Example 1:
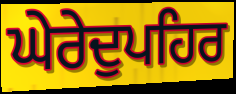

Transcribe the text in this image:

ਘੇਰੇਦੁਪਹਿਰ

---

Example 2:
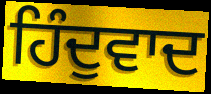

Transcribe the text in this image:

ਹਿੰਦੁਵਾਦ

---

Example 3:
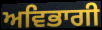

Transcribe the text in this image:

ਅਵਿਭਾਗੀ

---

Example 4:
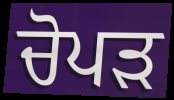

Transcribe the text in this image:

ਚੋਪੜ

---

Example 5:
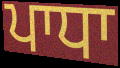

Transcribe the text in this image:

ਪਾਧਾ